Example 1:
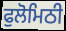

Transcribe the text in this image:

ਫੁਲੋਮਿਠੀ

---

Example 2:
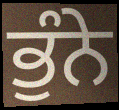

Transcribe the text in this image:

ਭੁੰਨੇ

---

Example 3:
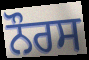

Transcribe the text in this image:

ਨੌਰਸ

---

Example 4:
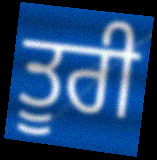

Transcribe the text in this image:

ਤੂਰੀ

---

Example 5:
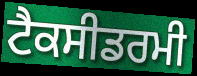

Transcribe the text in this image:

ਟੈਕਸੀਡਰਮੀ